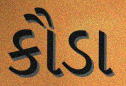
કૌડા